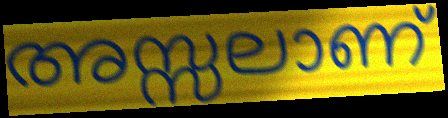
അസ്സലാണ്